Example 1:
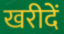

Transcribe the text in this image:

खरीदें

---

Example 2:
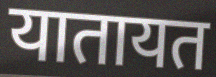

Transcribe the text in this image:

यातायत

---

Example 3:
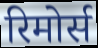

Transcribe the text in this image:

रिमोर्स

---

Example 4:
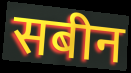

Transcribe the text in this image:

सबीन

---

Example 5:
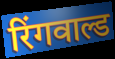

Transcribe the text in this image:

रिंगवाल्ड